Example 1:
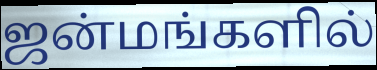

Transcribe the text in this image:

ஜன்மங்களில்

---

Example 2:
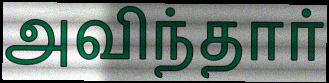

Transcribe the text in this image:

அவிந்தார்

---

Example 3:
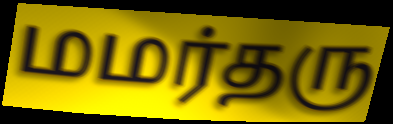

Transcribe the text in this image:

மமர்தரு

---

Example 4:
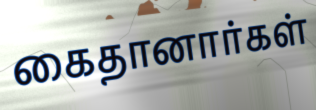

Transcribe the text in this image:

கைதானார்கள்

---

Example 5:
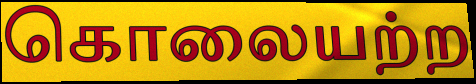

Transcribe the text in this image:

கொலையற்ற